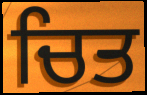
ਚਿਤ